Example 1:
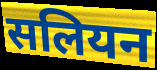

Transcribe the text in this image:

सलियन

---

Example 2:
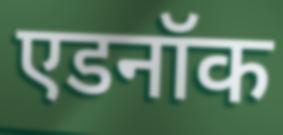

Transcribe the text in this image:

एडनॉक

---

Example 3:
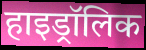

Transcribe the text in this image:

हाइड्रॉलिक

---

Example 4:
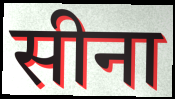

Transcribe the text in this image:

सीना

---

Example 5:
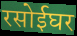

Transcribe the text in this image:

रसोईघर